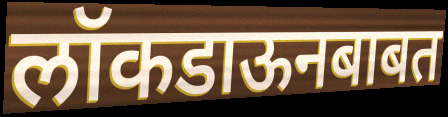
लॉकडाऊनबाबत